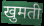
खुमती